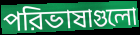
পরিভাষাগুলো